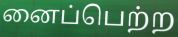
னைப்பெற்ற